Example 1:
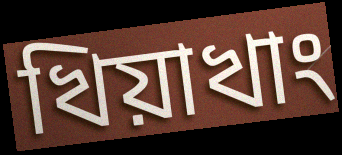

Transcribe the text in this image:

খিয়াখাং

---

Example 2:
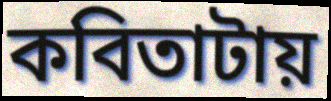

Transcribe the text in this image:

কবিতাটায়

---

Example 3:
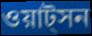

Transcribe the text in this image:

ওয়াট্সন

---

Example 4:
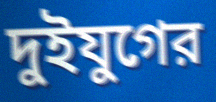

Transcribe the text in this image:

দুইযুগের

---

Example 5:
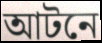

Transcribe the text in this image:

আটনে